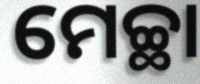
ମେଚ୍ଛା